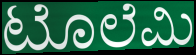
ಟೊಲೆಮಿ